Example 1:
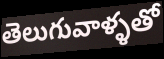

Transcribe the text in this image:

తెలుగువాళ్ళతో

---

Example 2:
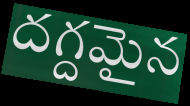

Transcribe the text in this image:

దగ్దమైన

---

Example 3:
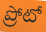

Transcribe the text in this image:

ప్రోటో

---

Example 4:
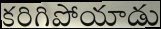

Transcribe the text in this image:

కరిగిపోయాడు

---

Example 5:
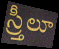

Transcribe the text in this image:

స్ర్తీలూ